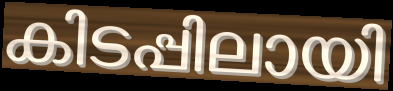
കിടപ്പിലായി